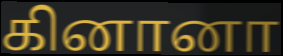
கினானா